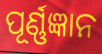
ପୂର୍ଣ୍ଣଜ୍ଞାନ